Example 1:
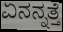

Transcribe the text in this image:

ಏನನ್ನತ್ತೆ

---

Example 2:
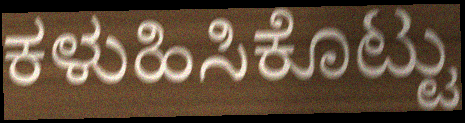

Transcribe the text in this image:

ಕಳುಹಿಸಿಕೊಟ್ಟು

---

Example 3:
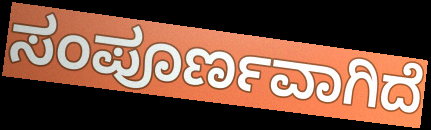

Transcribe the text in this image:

ಸಂಪೂರ್ಣವಾಗಿದೆ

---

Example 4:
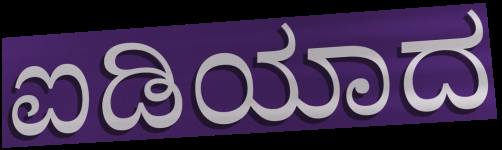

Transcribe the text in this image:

ಐಡಿಯಾದ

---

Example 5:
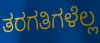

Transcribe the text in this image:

ತರಗತಿಗಳೆಲ್ಲ